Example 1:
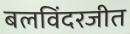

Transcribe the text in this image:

बलविंदरजीत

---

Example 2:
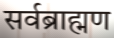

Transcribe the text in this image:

सर्वब्राह्मण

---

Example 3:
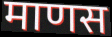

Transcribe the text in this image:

माणस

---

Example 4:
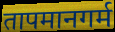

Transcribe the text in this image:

तापमानगर्म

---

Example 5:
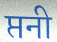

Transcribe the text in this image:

प्तनी